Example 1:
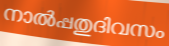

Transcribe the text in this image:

നാൽപ്പതുദിവസം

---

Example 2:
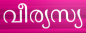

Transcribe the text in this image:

വീര്യസ്യ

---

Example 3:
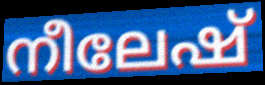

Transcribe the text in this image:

നീലേഷ്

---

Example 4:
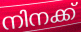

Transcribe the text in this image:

നിനക്ക്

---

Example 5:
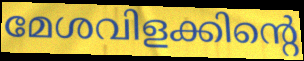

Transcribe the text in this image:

മേശവിളക്കിന്റെ